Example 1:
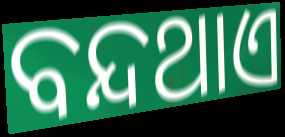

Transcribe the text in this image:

ବନ୍ଦଥାଏ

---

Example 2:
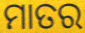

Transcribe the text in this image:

ମାତର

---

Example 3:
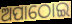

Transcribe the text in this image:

ଅପାଠୋଇ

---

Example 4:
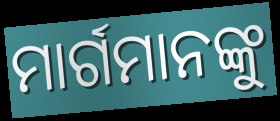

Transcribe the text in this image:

ମାର୍ଗମାନଙ୍କୁ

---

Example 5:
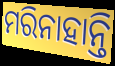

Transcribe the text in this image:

ମରିନାହାନ୍ତି